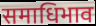
समाधिभाव